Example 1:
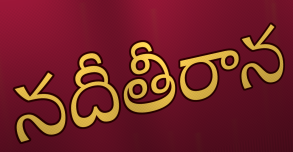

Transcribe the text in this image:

నదీతీరాన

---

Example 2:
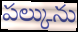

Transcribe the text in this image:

పల్కును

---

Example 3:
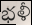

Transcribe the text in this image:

భళీ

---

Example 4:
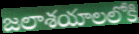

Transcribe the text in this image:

జలాశయాలలోకి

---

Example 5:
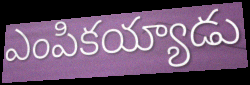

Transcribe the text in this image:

ఎంపికయ్యాడు